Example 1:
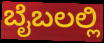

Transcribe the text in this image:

ಬೈಬಲಲ್ಲಿ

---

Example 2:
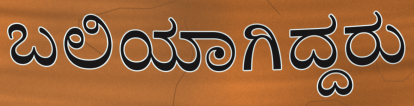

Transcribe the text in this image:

ಬಲಿಯಾಗಿದ್ದರು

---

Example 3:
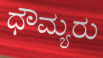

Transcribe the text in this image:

ಧೌಮ್ಯರು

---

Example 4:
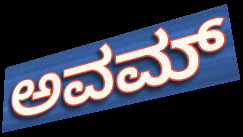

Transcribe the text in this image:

ಅವಮ್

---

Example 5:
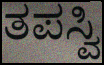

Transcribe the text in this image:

ತಪಸ್ವಿ